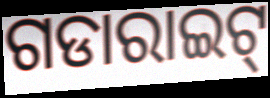
ଗଡାରାଇଟ୍